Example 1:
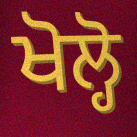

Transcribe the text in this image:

ਖੋਲ੍ਹੋ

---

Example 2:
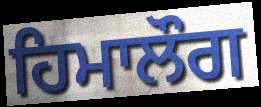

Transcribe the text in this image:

ਹਿਮਾਲੌਗ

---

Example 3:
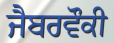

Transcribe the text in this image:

ਜੈਬਰਵੌਕੀ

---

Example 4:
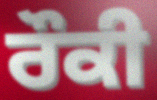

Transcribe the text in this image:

ਰੌਕੀ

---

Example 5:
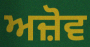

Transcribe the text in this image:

ਅਜ਼ੋਵ